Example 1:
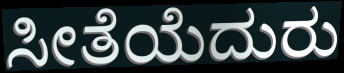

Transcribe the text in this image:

ಸೀತೆಯೆದುರು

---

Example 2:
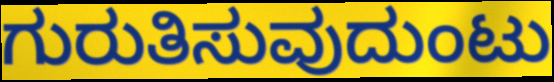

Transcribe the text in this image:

ಗುರುತಿಸುವುದುಂಟು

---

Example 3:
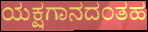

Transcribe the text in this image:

ಯಕ್ಷಗಾನದಂತಹ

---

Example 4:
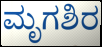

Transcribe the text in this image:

ಮೃಗಶಿರ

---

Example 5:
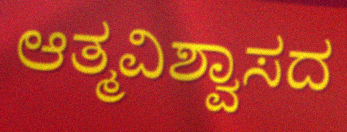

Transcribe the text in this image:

ಆತ್ಮವಿಶ್ವಾಸದ